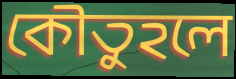
কৌতুহলে